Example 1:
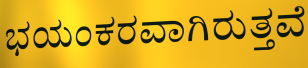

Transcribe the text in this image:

ಭಯಂಕರವಾಗಿರುತ್ತವೆ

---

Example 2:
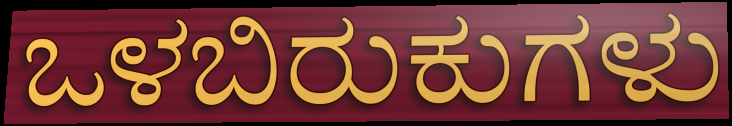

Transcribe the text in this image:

ಒಳಬಿರುಕುಗಳು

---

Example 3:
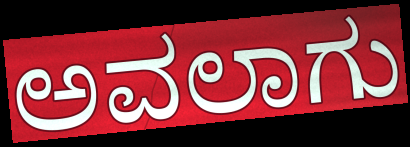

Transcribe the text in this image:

ಅವಲಾಗು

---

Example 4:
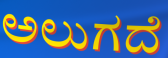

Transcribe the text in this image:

ಅಲುಗದೆ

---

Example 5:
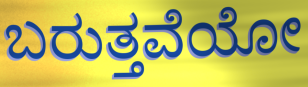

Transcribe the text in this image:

ಬರುತ್ತವೆಯೋ